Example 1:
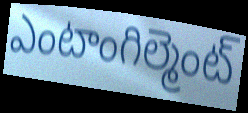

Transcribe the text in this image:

ఎంటాంగిల్మెంట్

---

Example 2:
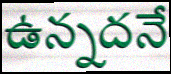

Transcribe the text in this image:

ఉన్నదనే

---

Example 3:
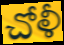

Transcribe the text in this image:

చోళీ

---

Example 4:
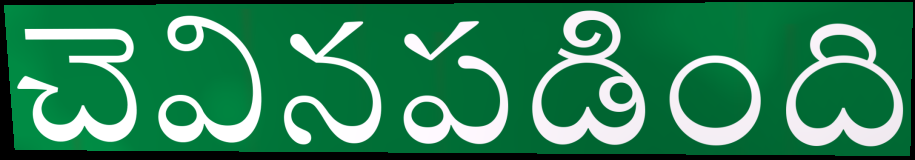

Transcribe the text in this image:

చెవినపడింది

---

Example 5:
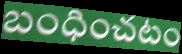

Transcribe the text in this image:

బంధించటం